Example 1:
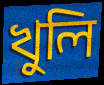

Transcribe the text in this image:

খুলি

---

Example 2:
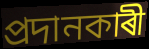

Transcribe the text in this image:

প্ৰদানকাৰী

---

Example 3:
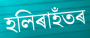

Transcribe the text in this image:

হলিৰাহঁতৰ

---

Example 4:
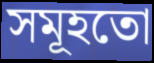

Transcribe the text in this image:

সমূহতো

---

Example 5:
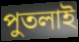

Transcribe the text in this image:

পুতলাই